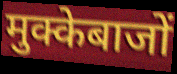
मुक्केबाजों